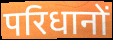
परिधानों